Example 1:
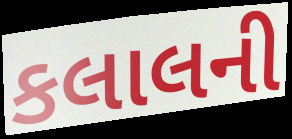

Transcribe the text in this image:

કલાલની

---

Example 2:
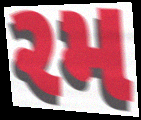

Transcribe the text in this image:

રમ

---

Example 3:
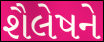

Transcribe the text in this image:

શૈલેષને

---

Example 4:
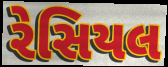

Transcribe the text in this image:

રેસિયલ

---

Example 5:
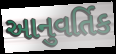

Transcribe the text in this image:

આનુવર્તિક